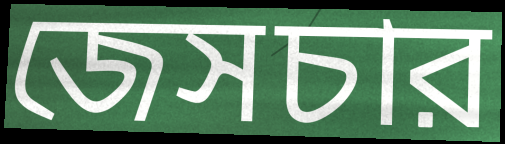
জেসচার